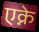
एक्ने